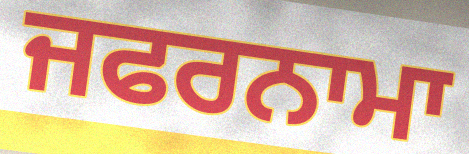
ਜਫਰਨਾਮਾ